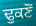
ਢੁਕਣੋਂ